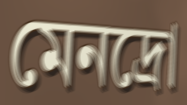
মেনদ্রো